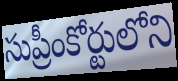
సుప్రీంకోర్టులోని